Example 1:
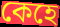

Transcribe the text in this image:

কেহে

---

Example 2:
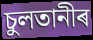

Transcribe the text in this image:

চুলতানীৰ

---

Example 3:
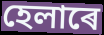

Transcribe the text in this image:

হেলাৰে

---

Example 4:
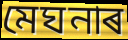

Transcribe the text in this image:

মেঘনাৰ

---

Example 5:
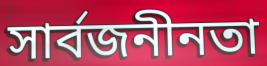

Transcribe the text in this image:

সাৰ্বজনীনতা